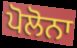
ਪੋਲੋਨਾ